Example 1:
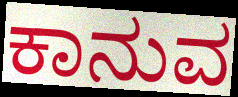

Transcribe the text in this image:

ಕಾನುವ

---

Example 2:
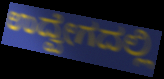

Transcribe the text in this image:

ಉದ್ವೇಗದಲ್ಲಿ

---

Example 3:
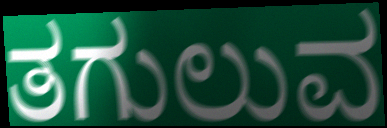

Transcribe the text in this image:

ತಗುಲುವ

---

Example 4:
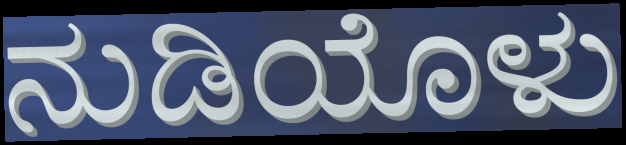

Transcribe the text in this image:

ನುಡಿಯೊಳು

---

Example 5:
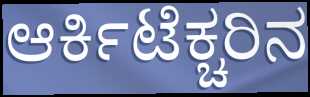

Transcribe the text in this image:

ಆರ್ಕಿಟೆಕ್ಚರಿನ